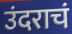
उंदराचं